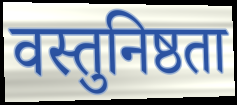
वस्तुनिष्ठता